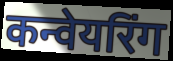
कन्वेयरिंग